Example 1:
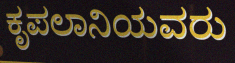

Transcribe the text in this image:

ಕೃಪಲಾನಿಯವರು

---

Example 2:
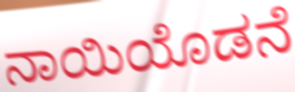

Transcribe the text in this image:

ನಾಯಿಯೊಡನೆ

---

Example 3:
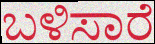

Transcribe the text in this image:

ಬಳಿಸಾರೆ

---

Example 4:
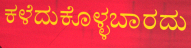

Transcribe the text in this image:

ಕಳೆದುಕೊಳ್ಳಬಾರದು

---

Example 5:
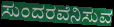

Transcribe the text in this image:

ಸುಂದರವೆನಿಸುವ